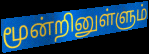
மூன்றினுள்ளும்